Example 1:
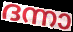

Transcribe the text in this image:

ദന്നാ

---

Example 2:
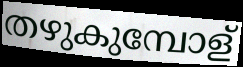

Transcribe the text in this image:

തഴുകുമ്പോള്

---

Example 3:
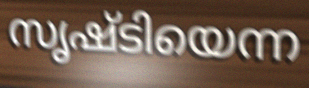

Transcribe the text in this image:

സൃഷ്ടിയെന്ന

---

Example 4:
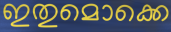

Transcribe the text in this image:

ഇതുമൊക്കെ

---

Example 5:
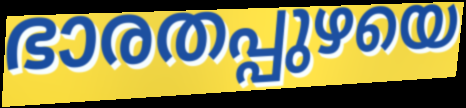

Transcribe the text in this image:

ഭാരതപ്പുഴയെ